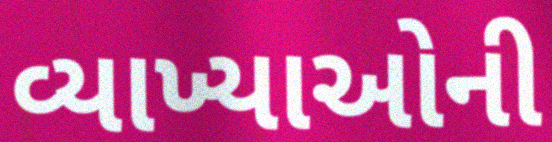
વ્યાખ્યાઓની